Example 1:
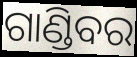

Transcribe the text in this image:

ଗାଣ୍ଡିବର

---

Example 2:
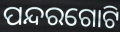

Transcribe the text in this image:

ପନ୍ଦରଗୋଟି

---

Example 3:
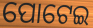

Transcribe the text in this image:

ପୋଟେଇ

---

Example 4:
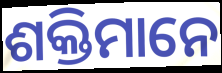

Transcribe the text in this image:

ଶକ୍ତିମାନେ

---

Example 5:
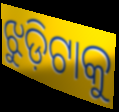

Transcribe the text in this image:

ଝୁଡ଼ିଟାକୁ